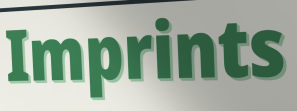
Imprints